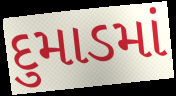
દુમાડમાં